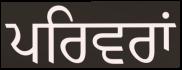
ਪਰਿਵਰਾਂ